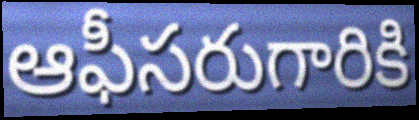
ఆఫీసరుగారికి